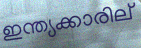
ഇന്ത്യക്കാരില്